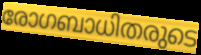
രോഗബാധിതരുടെ